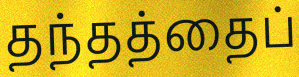
தந்தத்தைப்